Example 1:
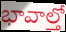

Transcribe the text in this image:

భావాల్తో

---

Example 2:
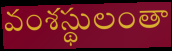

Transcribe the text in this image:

వంశస్థులంతా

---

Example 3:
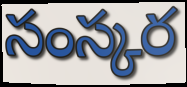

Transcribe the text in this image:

సంస్కర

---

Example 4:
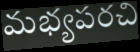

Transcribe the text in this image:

మభ్యపరచి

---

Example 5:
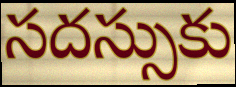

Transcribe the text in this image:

సదస్సుకు